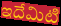
ఇదేమిటి